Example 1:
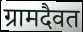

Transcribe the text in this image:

ग्रामदैवत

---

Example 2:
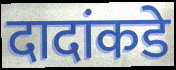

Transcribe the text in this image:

दादांकडे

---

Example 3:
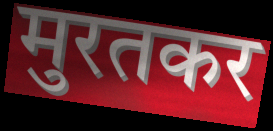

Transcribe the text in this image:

मुरतकर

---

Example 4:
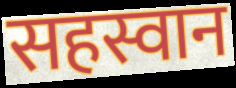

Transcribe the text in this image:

सहस्वान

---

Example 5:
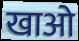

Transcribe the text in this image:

खाओ